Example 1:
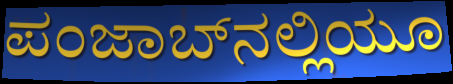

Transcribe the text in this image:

ಪಂಜಾಬ್‌ನಲ್ಲಿಯೂ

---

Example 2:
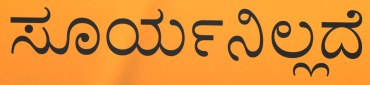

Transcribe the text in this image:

ಸೂರ್ಯನಿಲ್ಲದೆ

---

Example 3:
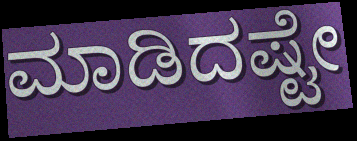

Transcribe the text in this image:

ಮಾಡಿದಷ್ಟೇ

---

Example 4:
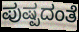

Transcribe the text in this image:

ಪುಷ್ಪದಂತೆ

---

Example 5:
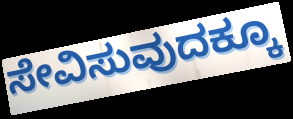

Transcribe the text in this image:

ಸೇವಿಸುವುದಕ್ಕೂ